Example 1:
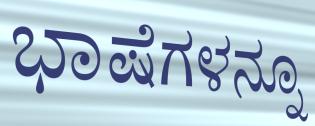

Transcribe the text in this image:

ಭಾಷೆಗಳನ್ನೂ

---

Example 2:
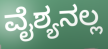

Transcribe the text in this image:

ವೈಶ್ಯನಲ್ಲ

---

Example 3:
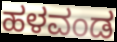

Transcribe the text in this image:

ಹಳವಂಡ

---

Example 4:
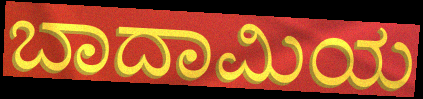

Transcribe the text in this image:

ಬಾದಾಮಿಯ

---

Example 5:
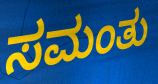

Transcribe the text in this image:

ಸಮಂತು